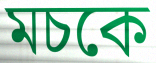
মচকে